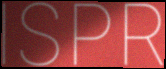
ISPR